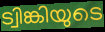
ട്വിങ്കിയുടെ